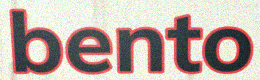
bento